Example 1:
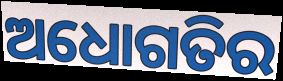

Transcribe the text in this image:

ଅଧୋଗତିର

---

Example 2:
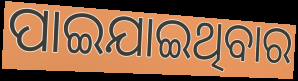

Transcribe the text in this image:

ପାଇଯାଇଥିବାର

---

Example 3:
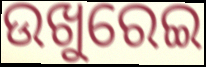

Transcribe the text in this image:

ଉଖୁରେଇ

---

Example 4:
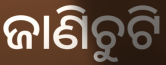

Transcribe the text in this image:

ଜାଣିଚୁଟି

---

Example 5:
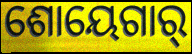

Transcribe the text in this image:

ଶୋୟେଗାର୍